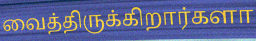
வைத்திருக்கிறார்களா